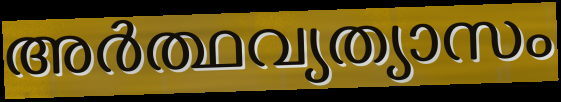
അർത്ഥവ്യത്യാസം